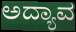
ಅದ್ಯಾವ